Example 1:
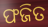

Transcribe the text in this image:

ଫଜିତ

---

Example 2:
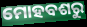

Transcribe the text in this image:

ମୋହବଶରୁ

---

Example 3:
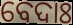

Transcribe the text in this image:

ବେଦାଃ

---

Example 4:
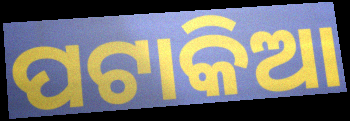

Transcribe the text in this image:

ପଟାକିଆ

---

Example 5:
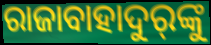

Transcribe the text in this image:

ରାଜାବାହାଦୁର୍‍ଙ୍କୁ